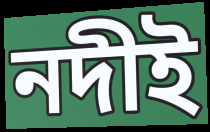
নদীই